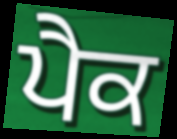
ਪੈਕ